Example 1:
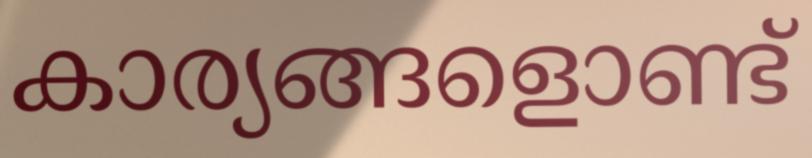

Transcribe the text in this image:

കാര്യങ്ങളൊണ്ട്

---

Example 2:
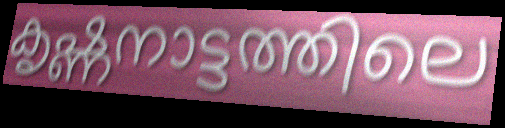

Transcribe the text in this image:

കൃഷ്ണനാട്ടത്തിലെ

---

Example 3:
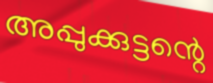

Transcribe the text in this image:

അപ്പുക്കുട്ടന്റെ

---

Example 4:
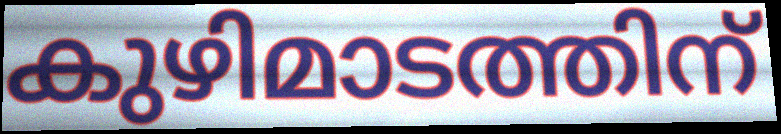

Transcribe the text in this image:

കുഴിമാടത്തിന്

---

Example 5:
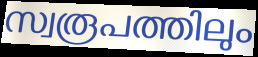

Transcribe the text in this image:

സ്വരൂപത്തിലും